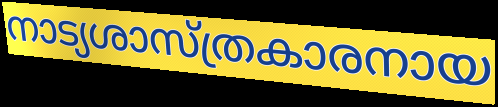
നാട്യശാസ്ത്രകാരനായ